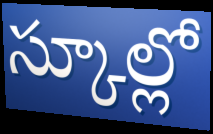
స్కూల్లో